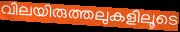
വിലയിരുത്തലുകളിലൂടെ